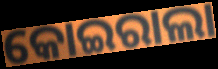
କୋଇରାଲା